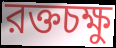
রক্তচক্ষু